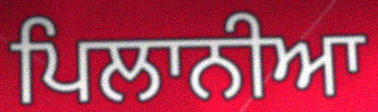
ਪਿਲਾਨੀਆ